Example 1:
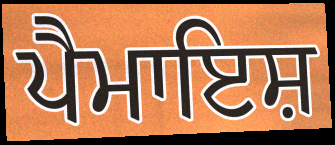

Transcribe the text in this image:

ਪੈਮਾਇਸ਼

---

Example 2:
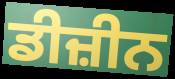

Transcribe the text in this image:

ਡੀਜ਼ੀਨ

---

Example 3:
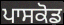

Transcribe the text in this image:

ਪਾਸਕੋਡ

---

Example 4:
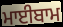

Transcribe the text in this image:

ਮਾਈਬਾਮ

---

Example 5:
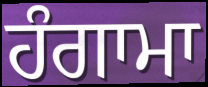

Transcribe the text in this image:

ਹੰਗਾਮਾ